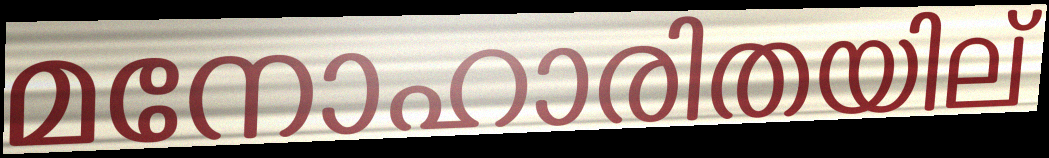
മനോഹാരിതയില്